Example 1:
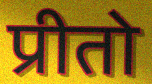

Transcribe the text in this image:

प्रीतो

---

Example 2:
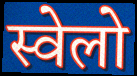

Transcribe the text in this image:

स्वेलो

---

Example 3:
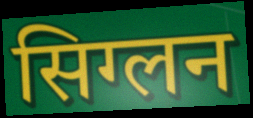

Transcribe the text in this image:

सिग्‍लन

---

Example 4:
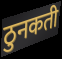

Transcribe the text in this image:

ठुनकती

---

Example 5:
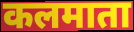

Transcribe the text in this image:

कलमाता